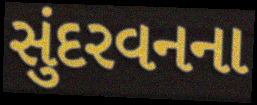
સુંદરવનના